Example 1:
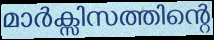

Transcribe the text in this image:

മാർക്സിസത്തിന്റെ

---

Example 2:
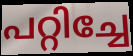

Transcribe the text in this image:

പറ്റിച്ചേ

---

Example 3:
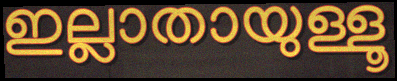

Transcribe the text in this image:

ഇല്ലാതായുള്ളൂ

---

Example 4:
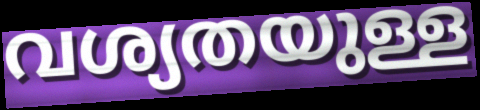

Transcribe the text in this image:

വശ്യതയുള്ള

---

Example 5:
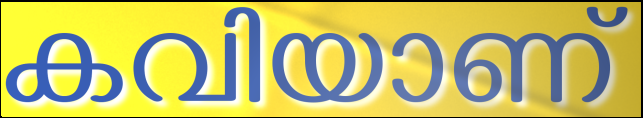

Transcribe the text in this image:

കവിയാണ്